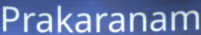
Prakaranam